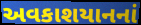
અવકાશયાનનાં